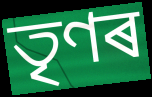
তৃণৰ